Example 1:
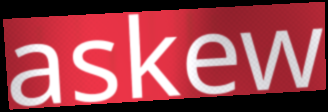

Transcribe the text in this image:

askew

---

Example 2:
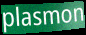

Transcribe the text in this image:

plasmon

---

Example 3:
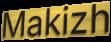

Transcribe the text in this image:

Makizh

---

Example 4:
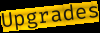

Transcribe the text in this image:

Upgrades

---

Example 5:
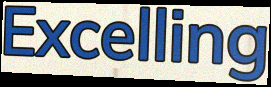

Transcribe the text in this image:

Excelling